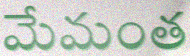
మేమంత